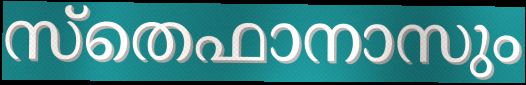
സ്തെഫാനാസും